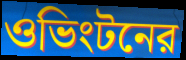
ওভিংটনের